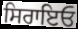
ਸਿਰਾਇਓ